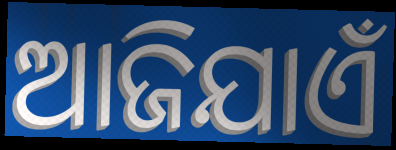
ଆଜିଯାଏଁ